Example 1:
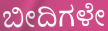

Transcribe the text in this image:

ಬೀದಿಗಳೇ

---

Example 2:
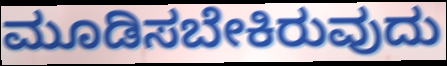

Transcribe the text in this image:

ಮೂಡಿಸಬೇಕಿರುವುದು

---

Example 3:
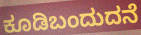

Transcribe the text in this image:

ಕೂಡಿಬಂದುದನೆ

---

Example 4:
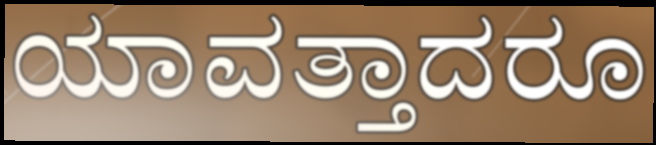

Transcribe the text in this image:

ಯಾವತ್ತಾದರೂ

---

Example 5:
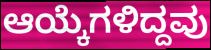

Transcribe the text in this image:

ಆಯ್ಕೆಗಳಿದ್ದವು